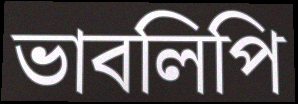
ভাবলিপি